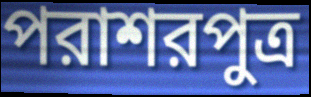
পরাশরপুত্র